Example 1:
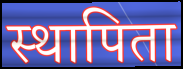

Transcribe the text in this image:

स्थापिता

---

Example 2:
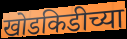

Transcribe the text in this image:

खोडकिडीच्या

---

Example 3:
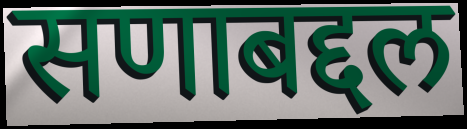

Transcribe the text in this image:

सणाबद्दल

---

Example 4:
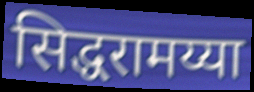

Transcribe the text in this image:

सिद्धरामय्या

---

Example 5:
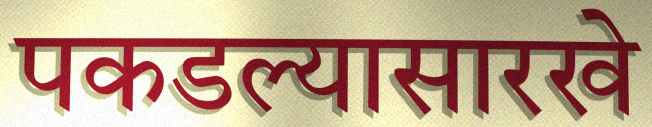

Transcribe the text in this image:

पकडल्यासारखे